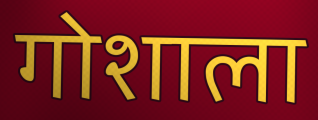
गोशाला